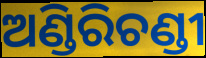
ଅଣ୍ଡିରିଚଣ୍ଡୀ